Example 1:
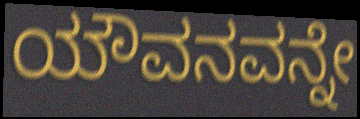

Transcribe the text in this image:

ಯೌವನವನ್ನೇ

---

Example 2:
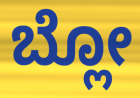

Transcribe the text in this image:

ಬ್ಲೋ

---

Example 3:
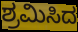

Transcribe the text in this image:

ಶ್ರಮಿಸಿದ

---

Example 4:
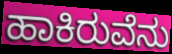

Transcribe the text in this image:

ಹಾಕಿರುವೆನು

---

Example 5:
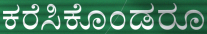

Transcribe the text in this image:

ಕರೆಸಿಕೊಂಡರೂ